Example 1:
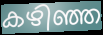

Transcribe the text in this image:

കഴിഞ്ഞ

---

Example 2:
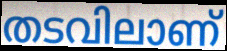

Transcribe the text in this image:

തടവിലാണ്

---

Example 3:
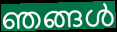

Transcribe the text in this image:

ഞങ്ങൾ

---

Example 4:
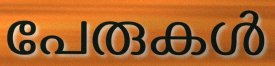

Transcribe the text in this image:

പേരുകൾ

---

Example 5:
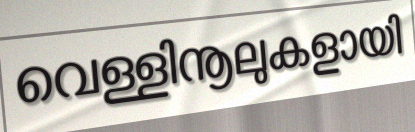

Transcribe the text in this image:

വെള്ളിനൂലുകളായി